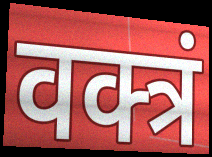
वक्त्रं